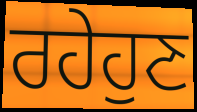
ਰਹੇਹੁਣ